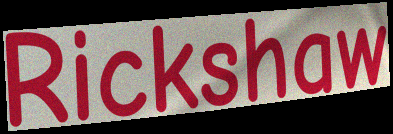
Rickshaw